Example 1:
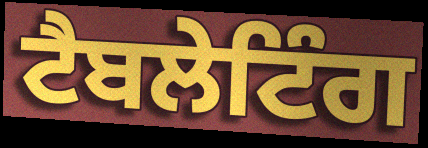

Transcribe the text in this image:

ਟੈਬਲੇਟਿੰਗ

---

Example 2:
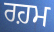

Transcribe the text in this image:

ਰਹ਼ਮ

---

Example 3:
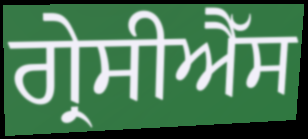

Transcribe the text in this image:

ਗ੍ਰੇਸੀਐੱਸ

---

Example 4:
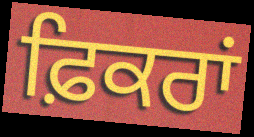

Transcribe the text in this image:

ਫ਼ਿਕਰਾਂ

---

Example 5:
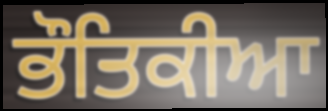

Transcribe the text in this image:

ਭੌਤਿਕੀਆ